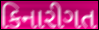
કિનારીગત